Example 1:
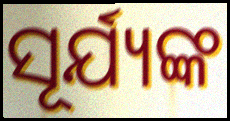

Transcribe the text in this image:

ସୂର୍ଯ୍ୟଙ୍କ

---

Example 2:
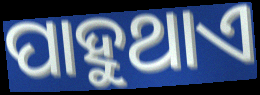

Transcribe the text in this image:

ପାହୁଥାଏ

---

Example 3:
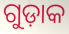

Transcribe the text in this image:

ଗୁଡ଼ାକ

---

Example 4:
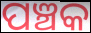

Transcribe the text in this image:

ପଞ୍ଚକ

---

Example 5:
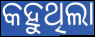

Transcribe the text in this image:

କହୁଥିଲା